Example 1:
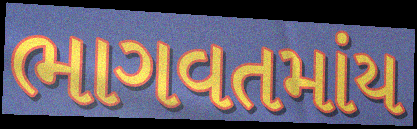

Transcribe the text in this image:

ભાગવતમાંય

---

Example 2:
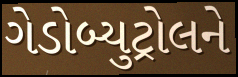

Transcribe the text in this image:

ગેડોબ્યુટ્રોલને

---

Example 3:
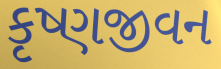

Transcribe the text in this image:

કૃષ્ણજીવન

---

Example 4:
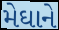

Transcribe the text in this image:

મેઘાને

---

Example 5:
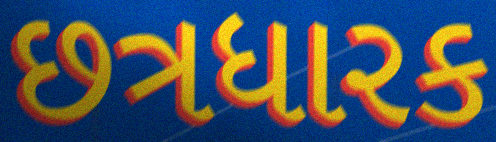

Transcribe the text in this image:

છત્રધારક